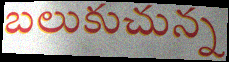
బలుకుచున్న